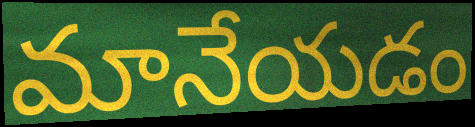
మానేయడం